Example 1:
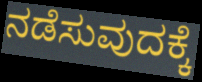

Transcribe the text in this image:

ನಡೆಸುವುದಕ್ಕೆ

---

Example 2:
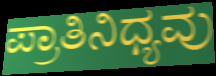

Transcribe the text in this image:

ಪ್ರಾತಿನಿಧ್ಯವು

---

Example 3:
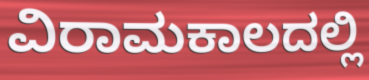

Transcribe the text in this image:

ವಿರಾಮಕಾಲದಲ್ಲಿ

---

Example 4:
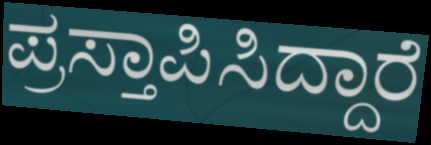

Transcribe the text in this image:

ಪ್ರಸ್ತಾಪಿಸಿದ್ದಾರೆ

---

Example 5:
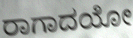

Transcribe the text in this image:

ರಾಗಾದಯೋ